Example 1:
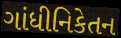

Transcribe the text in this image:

ગાંધીનિકેતન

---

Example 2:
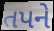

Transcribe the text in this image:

તપને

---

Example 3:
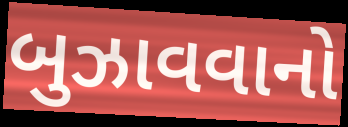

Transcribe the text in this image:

બુઝાવવાનો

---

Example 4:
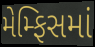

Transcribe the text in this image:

મેમ્ફિસમાં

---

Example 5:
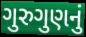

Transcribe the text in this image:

ગુરુગુણનું